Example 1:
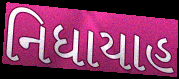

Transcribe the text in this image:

નિધાયાહ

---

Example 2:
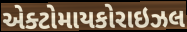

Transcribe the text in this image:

એક્ટોમાયકોરાઇઝલ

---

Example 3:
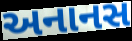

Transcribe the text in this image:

અનાનસ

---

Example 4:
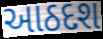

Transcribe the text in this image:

આઠદશ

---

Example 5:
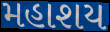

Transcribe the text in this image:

મહાશય